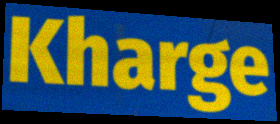
Kharge